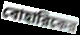
বোহারিকের